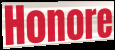
Honore